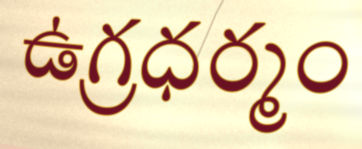
ఉగ్రధర్మం